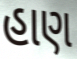
હાણ